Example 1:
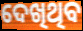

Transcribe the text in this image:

ଦେଖିଥିବ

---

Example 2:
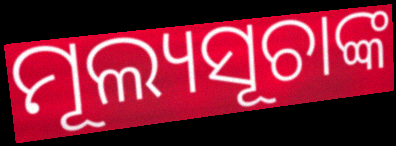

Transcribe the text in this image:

ମୂଲ୍ୟସୂଚାଙ୍କ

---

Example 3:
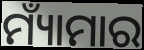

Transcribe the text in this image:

ମ୍ୟାଁମାର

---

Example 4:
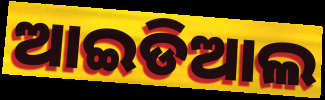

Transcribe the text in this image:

ଆଇଡିଆଲ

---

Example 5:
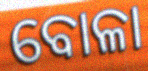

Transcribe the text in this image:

ବୋଳା